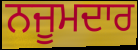
ਨਜੂਮਦਾਰ